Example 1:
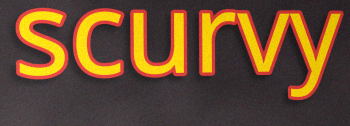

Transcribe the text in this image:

scurvy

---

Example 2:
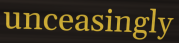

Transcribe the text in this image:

unceasingly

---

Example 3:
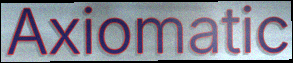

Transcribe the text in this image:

Axiomatic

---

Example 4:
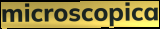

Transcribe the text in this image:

microscopica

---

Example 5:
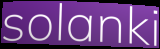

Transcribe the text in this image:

solanki